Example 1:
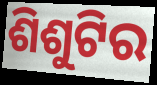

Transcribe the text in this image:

ଶିଶୁଟିର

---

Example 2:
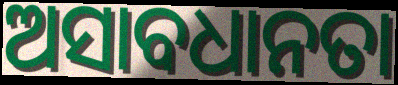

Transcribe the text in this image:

ଅସାବଧାନତା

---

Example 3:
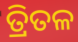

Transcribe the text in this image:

ତ୍ରିତଳ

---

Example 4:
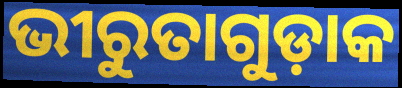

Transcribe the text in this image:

ଭୀରୁତାଗୁଡ଼ାକ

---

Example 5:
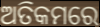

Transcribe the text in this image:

ଅତିକମରେ